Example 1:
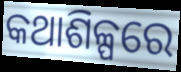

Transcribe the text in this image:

କଥାଶିଳ୍ପରେ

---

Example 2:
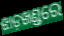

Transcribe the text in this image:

ଝାଡ଼ଖଣ୍ଡରେ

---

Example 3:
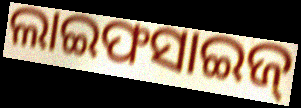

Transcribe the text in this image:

ଲାଇଫସାଇଜ୍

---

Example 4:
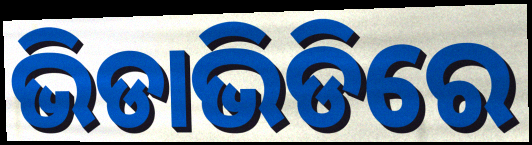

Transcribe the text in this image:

ଭିଡାଭିଡିରେ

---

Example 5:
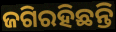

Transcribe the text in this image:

ଜଗିରହିଛନ୍ତି